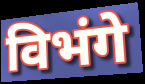
विभंगे